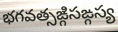
భగవత్సఙ్గిసఙ్గస్య